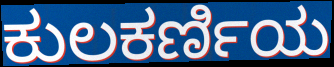
ಕುಲಕರ್ಣಿಯ